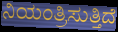
ನಿಯಂತ್ರಿಸುತ್ತಿದೆ